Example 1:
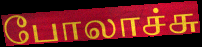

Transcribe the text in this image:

போலாச்சு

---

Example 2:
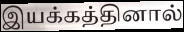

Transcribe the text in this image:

இயக்கத்தினால்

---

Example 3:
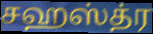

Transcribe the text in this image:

சஹஸ்த்ர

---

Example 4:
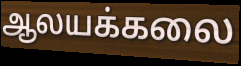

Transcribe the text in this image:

ஆலயக்கலை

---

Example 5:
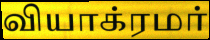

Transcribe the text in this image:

வியாக்ரமர்